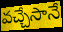
వచ్చేసానే